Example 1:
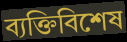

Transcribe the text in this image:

ব্যক্তিবিশেষ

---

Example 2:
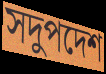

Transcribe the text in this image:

সদুপদেশ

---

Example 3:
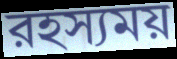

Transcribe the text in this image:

রহস্যময়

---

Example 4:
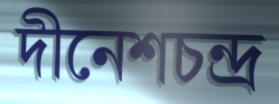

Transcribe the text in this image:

দীনেশচন্দ্র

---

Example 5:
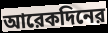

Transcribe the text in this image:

আরেকদিনের